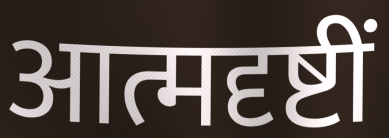
आत्मदृष्टीं